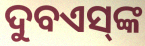
ଦୁବଏସ୍‌ଙ୍କ